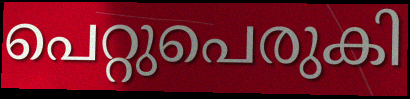
പെറ്റുപെരുകി